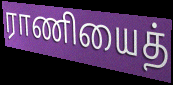
ராணியைத்